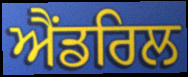
ਐਂਡਰਿਲ